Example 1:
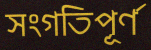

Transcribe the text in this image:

সংগতিপূৰ্ণ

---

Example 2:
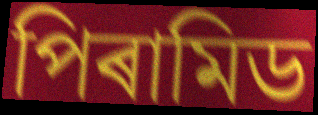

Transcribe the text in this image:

পিৰামিড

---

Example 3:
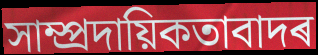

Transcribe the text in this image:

সাম্প্ৰদায়িকতাবাদৰ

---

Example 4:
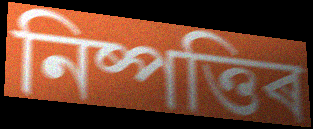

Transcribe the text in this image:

নিষ্পত্তিৰ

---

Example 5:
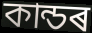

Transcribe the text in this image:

কান্ডৰ